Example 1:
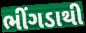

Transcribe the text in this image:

ભીંગડાથી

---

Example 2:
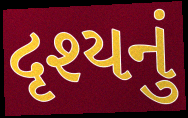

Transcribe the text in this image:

દૃશ્યનું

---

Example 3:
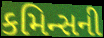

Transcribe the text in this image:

કમિન્સની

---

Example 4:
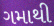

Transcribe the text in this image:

ગમાથી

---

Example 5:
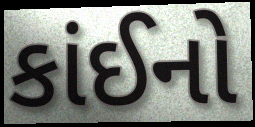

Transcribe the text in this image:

કાંઈનો